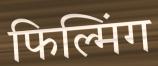
फिल्मिंग